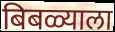
बिबळ्याला